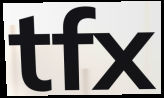
tfx